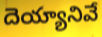
దెయ్యానివే